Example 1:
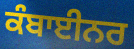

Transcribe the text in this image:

ਕੰਬਾਈਨਰ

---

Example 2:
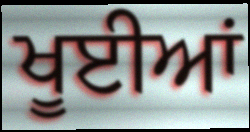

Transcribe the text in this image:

ਖੂਈਆਂ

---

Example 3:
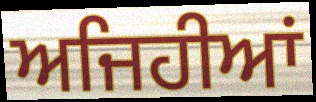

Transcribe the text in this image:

ਅਜਿਹੀਆਂ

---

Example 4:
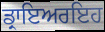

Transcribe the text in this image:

ਡ੍ਰਾਇਅਰਇਹ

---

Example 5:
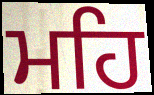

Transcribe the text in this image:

ਮਹਿ